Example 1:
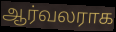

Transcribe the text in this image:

ஆர்வலராக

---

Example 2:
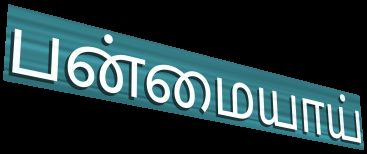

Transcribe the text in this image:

பன்மையாய்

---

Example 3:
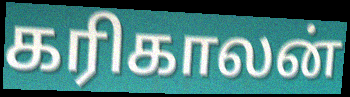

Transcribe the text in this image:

கரிகாலன்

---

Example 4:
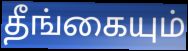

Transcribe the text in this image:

தீங்கையும்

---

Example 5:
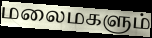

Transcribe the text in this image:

மலைமகளும்